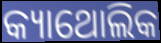
କ୍ୟାଥୋଲିକ